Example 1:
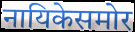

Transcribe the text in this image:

नायिकेसमोर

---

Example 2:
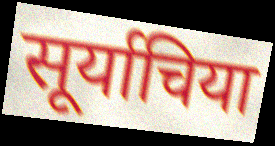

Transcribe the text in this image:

सूर्याचिया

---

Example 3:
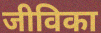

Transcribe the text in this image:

जीविका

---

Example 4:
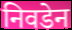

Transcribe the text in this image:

निवडेन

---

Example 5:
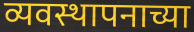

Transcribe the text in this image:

व्यवस्थापनाच्या